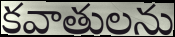
కవాతులను